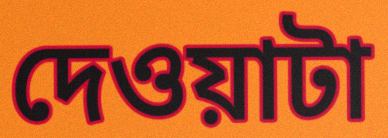
দেওয়াটা